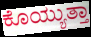
ಕೊಯ್ಯುತ್ತಾ